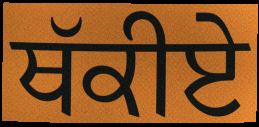
ਥੱਕੀਏ